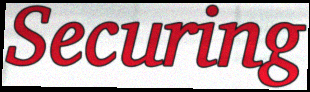
Securing